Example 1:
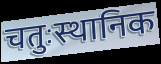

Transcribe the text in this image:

चतुःस्थानिक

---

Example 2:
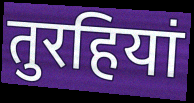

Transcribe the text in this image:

तुरहियां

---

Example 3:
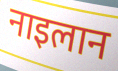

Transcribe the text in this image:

नाइलान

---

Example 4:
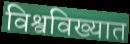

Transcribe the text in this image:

विश्वविख्यात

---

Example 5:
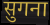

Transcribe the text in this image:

सुगना